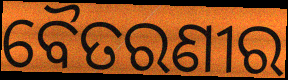
ବୈତରଣୀର